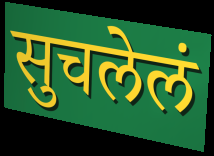
सुचलेलं